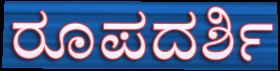
ರೂಪದರ್ಶಿ